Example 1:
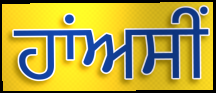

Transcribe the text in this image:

ਹਾਂਅਸੀਂ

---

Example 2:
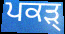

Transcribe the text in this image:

ਪਕੜ੍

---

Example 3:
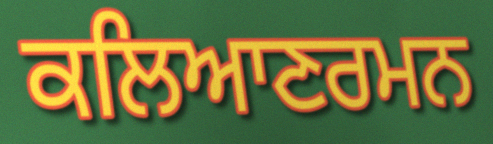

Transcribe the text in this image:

ਕਲਿਆਣਰਮਨ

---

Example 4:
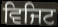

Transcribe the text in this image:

ਵਿਜਿਟ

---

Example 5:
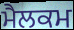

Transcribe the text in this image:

ਮੈਲਕਮ